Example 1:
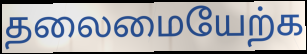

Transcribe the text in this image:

தலைமையேற்க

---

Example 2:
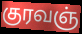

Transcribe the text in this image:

குரவஞ்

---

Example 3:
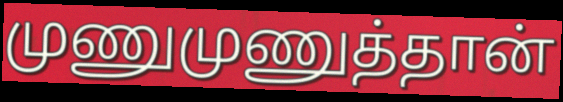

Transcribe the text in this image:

முணுமுணுத்தான்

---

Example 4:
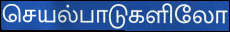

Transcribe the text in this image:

செயல்பாடுகளிலோ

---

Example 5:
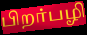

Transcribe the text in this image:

பிறர்பழி